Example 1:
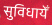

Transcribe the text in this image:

सुविधायेँ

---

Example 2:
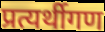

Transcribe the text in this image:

प्रत्यर्थीगण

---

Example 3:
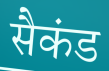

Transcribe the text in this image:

सैकंड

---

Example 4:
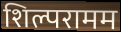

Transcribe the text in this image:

शिल्परामम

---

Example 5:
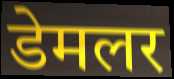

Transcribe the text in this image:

डेमलर